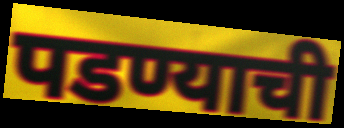
पडण्याची